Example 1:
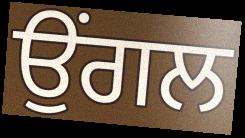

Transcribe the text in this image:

ਉੰਗਲ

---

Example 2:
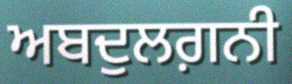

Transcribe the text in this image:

ਅਬਦੁਲਗ਼ਨੀ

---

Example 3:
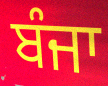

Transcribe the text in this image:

ਬੰਜਾ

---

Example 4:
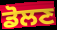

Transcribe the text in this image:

ਡੋਲਣ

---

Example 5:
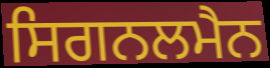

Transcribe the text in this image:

ਸਿਗਨਲਮੈਨ